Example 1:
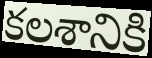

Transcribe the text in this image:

కలశానికి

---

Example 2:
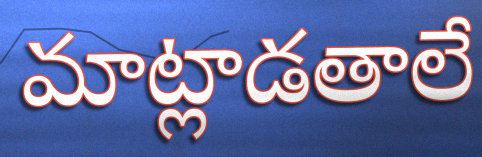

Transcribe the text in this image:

మాట్లాడతాలే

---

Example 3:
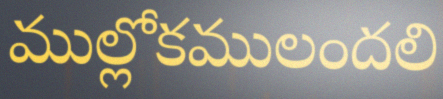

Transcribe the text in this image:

ముల్లోకములందలి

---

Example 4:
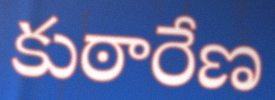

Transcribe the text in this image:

కుఠారేణ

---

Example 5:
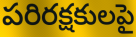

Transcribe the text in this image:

పరిరక్షకులపై